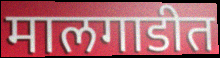
मालगाडीत